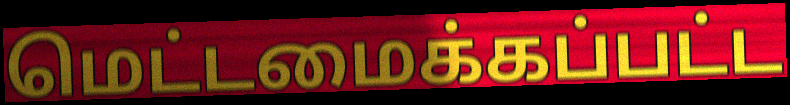
மெட்டமைக்கப்பட்ட